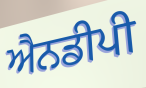
ਐਨਡੀਪੀ